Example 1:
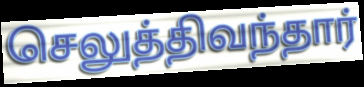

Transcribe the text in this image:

செலுத்திவந்தார்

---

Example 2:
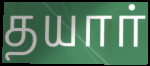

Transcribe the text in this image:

தயார்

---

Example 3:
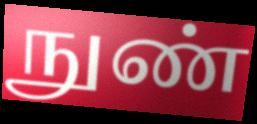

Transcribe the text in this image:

நுண்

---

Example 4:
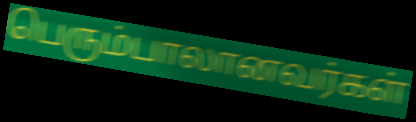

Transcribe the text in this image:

பெரும்பாலானவர்கள்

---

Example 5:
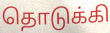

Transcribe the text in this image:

தொடுக்கி